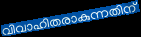
വിവാഹിതരാകുന്നതിന്